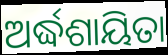
ଅର୍ଦ୍ଧଶାୟିତା